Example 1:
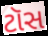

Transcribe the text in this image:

ટૉસ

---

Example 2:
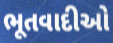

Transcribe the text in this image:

ભૂતવાદીઓ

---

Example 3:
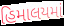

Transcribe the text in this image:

હિમાલયમાં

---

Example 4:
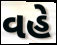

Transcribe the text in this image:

વહે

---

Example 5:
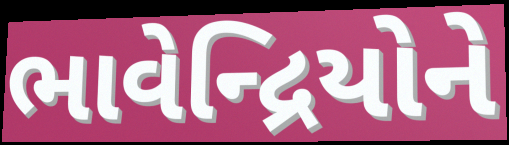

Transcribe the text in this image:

ભાવેન્દ્રિયોને